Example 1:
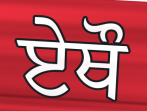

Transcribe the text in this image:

ਏਥੌ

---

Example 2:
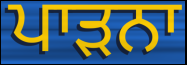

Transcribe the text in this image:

ਪਾੜਨਾ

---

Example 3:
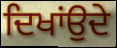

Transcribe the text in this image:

ਦਿਖਾਂਉਦੇ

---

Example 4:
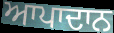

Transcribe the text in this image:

ਆਪਾਦਾਨ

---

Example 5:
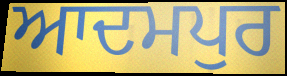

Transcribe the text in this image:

ਆਦਮਪੁਰ